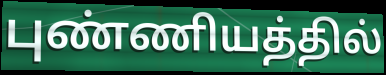
புண்ணியத்தில்